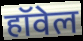
हॉवेल